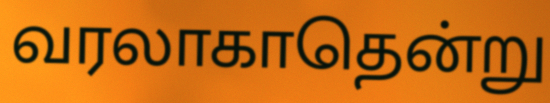
வரலாகாதென்று